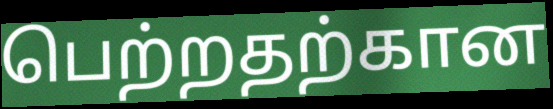
பெற்றதற்கான